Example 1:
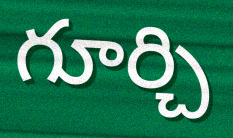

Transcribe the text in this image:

గూర్చి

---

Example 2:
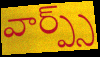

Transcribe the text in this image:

వార్ప్స్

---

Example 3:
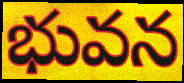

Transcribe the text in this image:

భువన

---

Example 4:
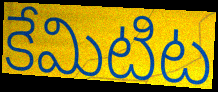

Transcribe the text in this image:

కేమిటిట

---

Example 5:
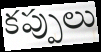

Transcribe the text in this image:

కప్పులు